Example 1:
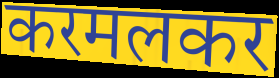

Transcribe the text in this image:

करमलकर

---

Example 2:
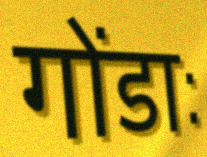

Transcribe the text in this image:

गोंडाः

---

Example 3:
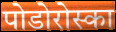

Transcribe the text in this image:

पोडोरोस्का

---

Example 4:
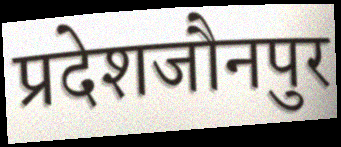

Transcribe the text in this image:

प्रदेशजौनपुर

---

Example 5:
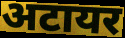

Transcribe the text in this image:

अटायर